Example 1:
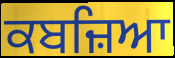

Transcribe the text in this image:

ਕਬਜ਼ਿਆ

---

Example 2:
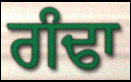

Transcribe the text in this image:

ਗੰਢਾ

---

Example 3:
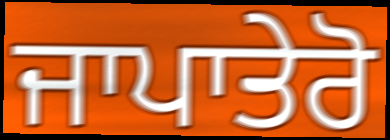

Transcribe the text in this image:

ਜਾਪਾਤੇਰੋ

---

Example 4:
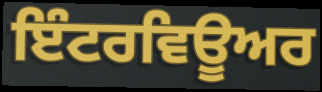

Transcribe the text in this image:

ਇੰਟਰਵਿਊਅਰ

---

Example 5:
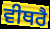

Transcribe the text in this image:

ਵੀਥਰੈ